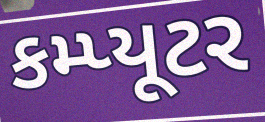
કમ્પ્યૂટર